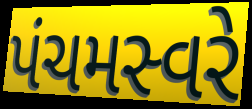
પંચમસ્વરે